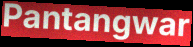
Pantangwar